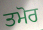
ਤਮੋਰ